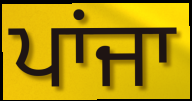
ਪਾਂਜਾ